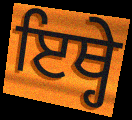
ਇਥ੍ਹੇ